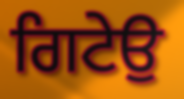
ਗਿਟੇਉ